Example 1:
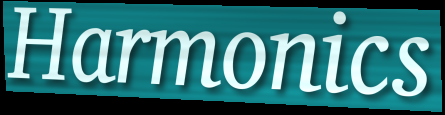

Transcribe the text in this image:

Harmonics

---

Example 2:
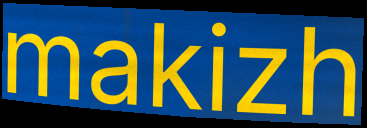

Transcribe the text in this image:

makizh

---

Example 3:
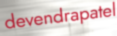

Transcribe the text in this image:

devendrapatel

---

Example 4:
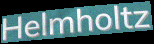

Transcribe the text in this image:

Helmholtz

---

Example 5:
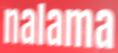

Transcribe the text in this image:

nalama